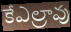
కేఎల్రావు